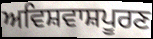
ਅਵਿਸ਼ਵਾਸ਼ਪੂਰਣ